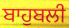
ਬਾਹੁਬਲੀ